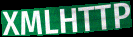
XMLHTTP